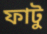
ফাটু